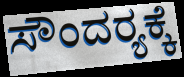
ಸೌಂದರ‍್ಯಕ್ಕೆ